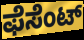
ಫೆಸೆಂಟ್